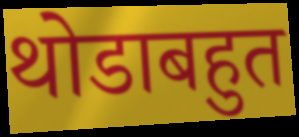
थोडाबहुत